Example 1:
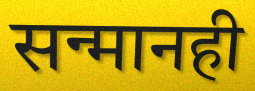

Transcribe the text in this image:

सन्मानही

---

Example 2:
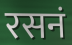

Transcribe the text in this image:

रसनं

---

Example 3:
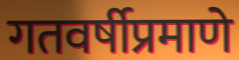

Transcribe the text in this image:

गतवर्षीप्रमाणे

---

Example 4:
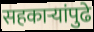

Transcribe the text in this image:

सहकाऱ्यांपुढे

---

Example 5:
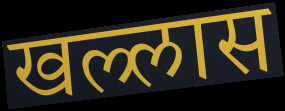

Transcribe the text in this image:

खल्लास